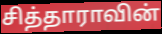
சித்தாராவின்